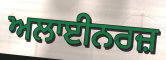
ਅਲਾਈਨਰਜ਼